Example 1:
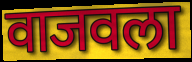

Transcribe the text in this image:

वाजवला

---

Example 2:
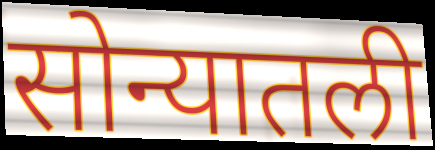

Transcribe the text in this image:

सोन्यातली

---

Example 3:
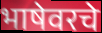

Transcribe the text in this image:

भाषेवरचे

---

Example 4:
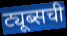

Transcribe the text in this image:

ट्यूब्सची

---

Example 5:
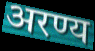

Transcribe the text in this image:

अरण्य